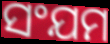
ସଂଯମ